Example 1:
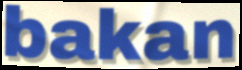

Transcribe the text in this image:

bakan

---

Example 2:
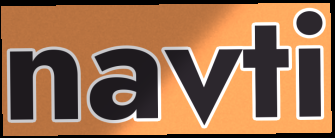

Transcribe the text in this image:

navti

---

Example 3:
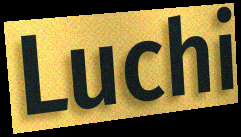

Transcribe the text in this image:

Luchi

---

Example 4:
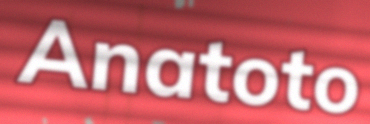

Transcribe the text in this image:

Anatoto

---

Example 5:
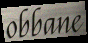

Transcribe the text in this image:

obbane